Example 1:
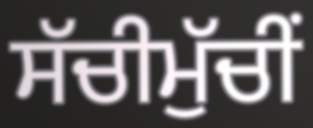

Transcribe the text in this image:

ਸੱਚੀਮੁੱਚੀਂ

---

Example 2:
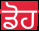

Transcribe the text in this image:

ਡੋਹ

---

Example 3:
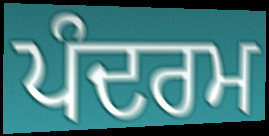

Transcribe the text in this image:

ਪੰਦਰਮ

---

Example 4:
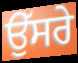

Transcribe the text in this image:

ਉੱਸਰੇ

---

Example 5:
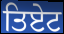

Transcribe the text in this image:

ਤਿਏਟ